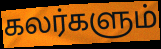
கலர்களும்